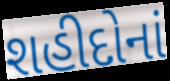
શહીદોનાં